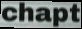
chapt